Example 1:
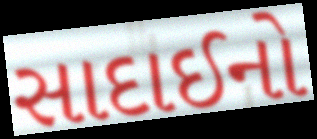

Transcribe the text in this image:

સાદાઈનો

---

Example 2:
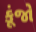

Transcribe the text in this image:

કૂંજો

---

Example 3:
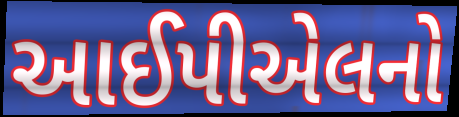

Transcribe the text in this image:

આઈપીએલનો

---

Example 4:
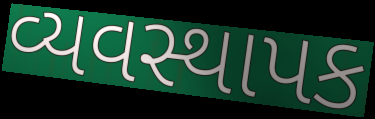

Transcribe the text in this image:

વ્યવસ્થાપક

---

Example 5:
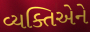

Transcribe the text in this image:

વ્યક્તિએને